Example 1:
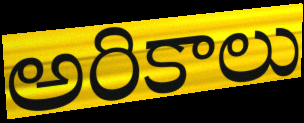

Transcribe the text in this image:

అరికాలు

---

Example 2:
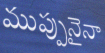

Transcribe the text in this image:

ముప్పునైనా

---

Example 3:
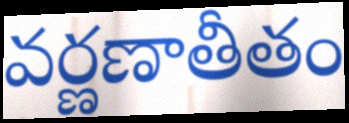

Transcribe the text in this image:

వర్ణణాతీతం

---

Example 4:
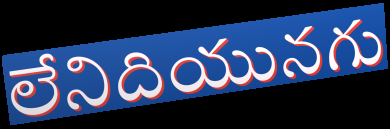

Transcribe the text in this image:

లేనిదియునగు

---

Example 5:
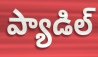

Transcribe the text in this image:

ప్యాడిల్